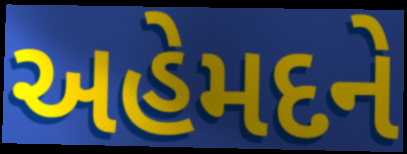
અહેમદને